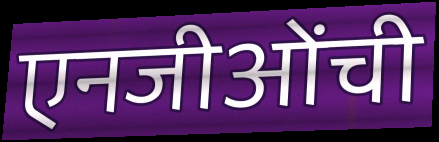
एनजीओंची